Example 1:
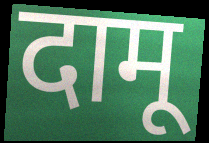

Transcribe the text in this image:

दामू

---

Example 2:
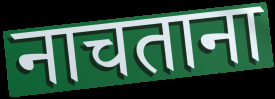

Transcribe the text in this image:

नाचताना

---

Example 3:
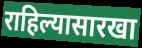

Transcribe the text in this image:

राहिल्यासारखा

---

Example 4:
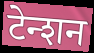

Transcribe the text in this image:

टेन्शन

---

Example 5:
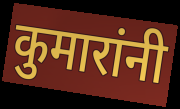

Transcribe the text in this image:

कुमारांनी